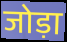
जोड़ा